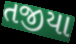
તજીયા